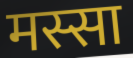
मस्‍सा